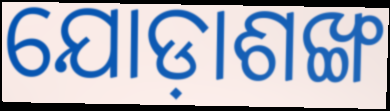
ଯୋଡ଼ାଶଙ୍ଖ